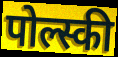
पोल्स्की